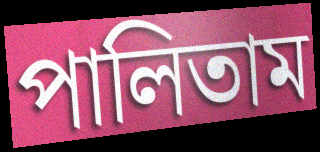
পালিতাম